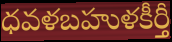
ధవళబహుళకీర్తీ